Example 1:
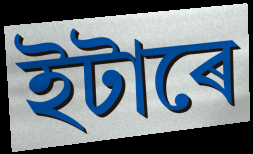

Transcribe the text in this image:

ইটাৰে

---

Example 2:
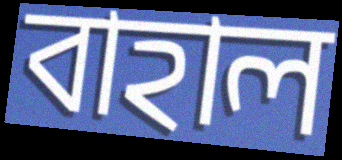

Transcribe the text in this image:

বাহাল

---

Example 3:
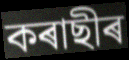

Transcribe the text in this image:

কৰাছীৰ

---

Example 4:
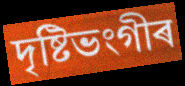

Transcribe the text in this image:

দৃষ্টিভংগীৰ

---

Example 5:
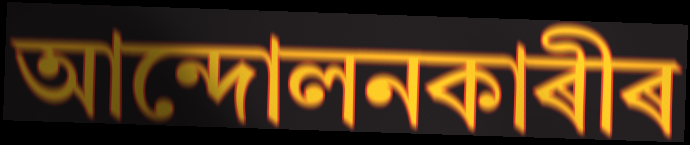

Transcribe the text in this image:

আন্দোলনকাৰীৰ